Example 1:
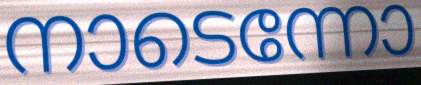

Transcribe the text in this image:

നാടെന്നോ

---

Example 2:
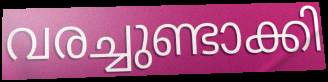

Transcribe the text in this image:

വരച്ചുണ്ടാക്കി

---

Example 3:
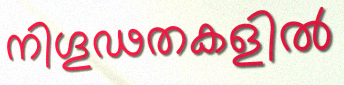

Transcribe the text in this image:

നിഗൂഢതകളിൽ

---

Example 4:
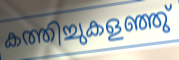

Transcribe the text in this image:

കത്തിച്ചുകളഞ്ഞു്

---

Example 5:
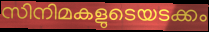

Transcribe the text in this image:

സിനിമകളുടെയടക്കം